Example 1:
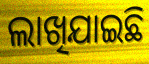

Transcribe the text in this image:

ଲାଖିଯାଇଛି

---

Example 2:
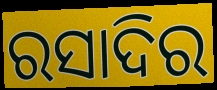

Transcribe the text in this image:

ରସାଦିର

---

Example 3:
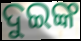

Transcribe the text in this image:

ଦୁଇଙ୍କ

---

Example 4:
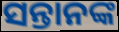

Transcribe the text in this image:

ସନ୍ତାନଙ୍କ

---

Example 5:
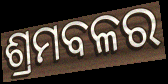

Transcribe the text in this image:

ଶ୍ରମବଳର